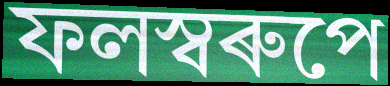
ফলস্বৰুপে